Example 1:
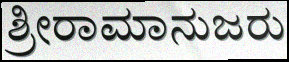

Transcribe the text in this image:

ಶ್ರೀರಾಮಾನುಜರು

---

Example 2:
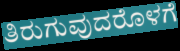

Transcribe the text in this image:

ತಿರುಗುವುದರೊಳಗೆ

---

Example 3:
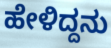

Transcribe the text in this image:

ಹೇಳಿದ್ದನು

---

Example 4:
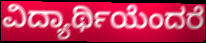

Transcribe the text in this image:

ವಿದ್ಯಾರ್ಥಿಯೆಂದರೆ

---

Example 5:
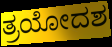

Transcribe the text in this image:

ತ್ರಯೋದಶ